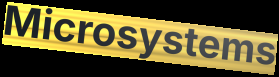
Microsystems